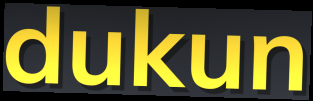
dukun